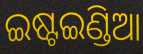
ଇଷ୍ଟଇଣ୍ଡିଆ